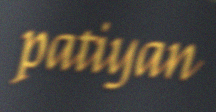
patiyan